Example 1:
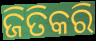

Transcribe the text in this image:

ଜିତିକରି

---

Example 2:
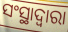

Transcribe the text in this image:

ସଂସ୍ଥାଦ୍ଵାରା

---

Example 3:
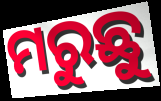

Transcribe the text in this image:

ମରୁଛୁ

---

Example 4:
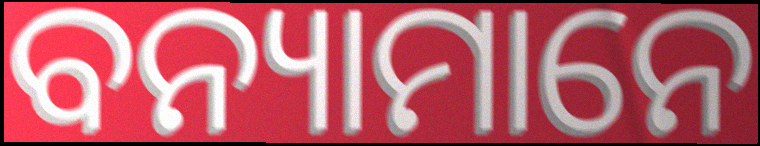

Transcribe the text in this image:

ବନ୍ୟାମାନେ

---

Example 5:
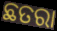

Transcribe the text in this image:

ଛତରା